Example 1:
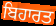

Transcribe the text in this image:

ਬਿਹਾਰਤ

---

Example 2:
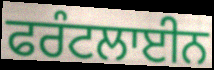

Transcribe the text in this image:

ਫਰੰਟਲਾਈਨ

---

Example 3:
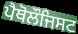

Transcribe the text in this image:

ਪੈਥੋਲੌਜਿਸਟ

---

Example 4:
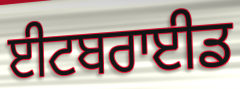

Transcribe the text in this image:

ਈਟਬਰਾਈਡ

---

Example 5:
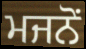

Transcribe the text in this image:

ਮਜਨੋਂ